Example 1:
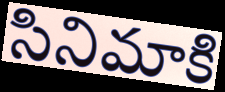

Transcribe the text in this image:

సినిమాకి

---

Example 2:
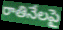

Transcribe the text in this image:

రాతినేలపై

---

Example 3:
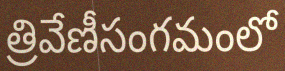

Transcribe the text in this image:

త్రివేణీసంగమంలో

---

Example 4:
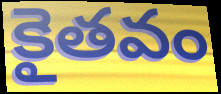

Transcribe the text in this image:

కైతవం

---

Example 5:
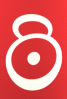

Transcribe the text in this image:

ఠి